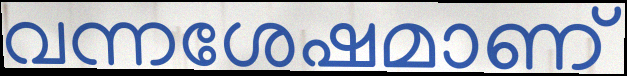
വന്നശേഷമാണ്